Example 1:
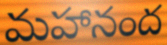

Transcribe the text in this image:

మహానంద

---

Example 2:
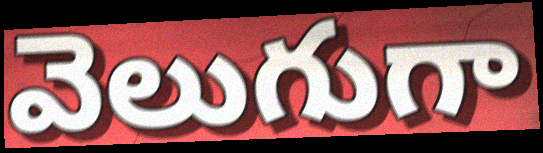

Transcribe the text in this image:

వెలుగుగా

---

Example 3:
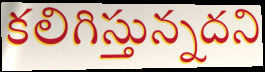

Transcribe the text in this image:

కలిగిస్తున్నదని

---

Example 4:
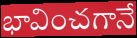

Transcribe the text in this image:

భావించగానే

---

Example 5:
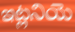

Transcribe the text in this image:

ఇట్లనియె